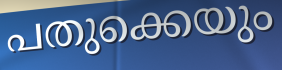
പതുക്കെയും